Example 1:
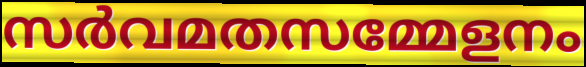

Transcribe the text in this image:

സർവമതസമ്മേളനം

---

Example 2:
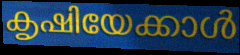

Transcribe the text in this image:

കൃഷിയേക്കാൾ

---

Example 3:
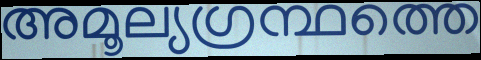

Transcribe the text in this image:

അമൂല്യഗ്രന്ഥത്തെ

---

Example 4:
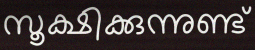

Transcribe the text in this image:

സൂക്ഷിക്കുന്നുണ്ട്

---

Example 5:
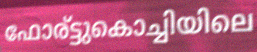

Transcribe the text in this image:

ഫോര്ട്ടുകൊച്ചിയിലെ